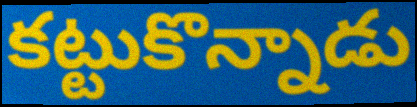
కట్టుకొన్నాడు